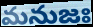
మనుజః